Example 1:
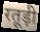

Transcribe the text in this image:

रतूड़ी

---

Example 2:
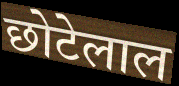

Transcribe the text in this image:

छोटेलाल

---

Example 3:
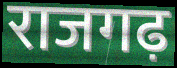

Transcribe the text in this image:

राजगढ़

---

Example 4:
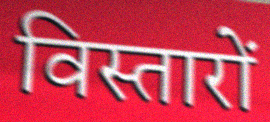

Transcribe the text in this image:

विस्तारों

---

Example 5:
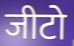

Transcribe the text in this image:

जीटो